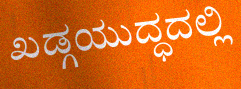
ಖಡ್ಗಯುದ್ಧದಲ್ಲಿ